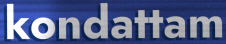
kondattam